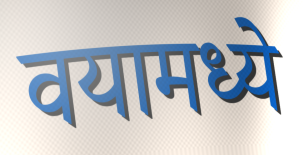
वयामध्ये